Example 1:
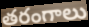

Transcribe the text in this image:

తరంగాలు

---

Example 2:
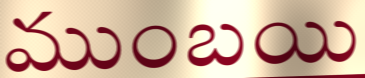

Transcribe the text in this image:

ముంబయి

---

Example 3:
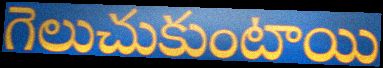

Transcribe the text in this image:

గెలుచుకుంటాయి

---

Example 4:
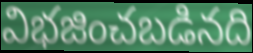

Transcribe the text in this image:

విభజించబడినది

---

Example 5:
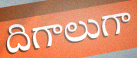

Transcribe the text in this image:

దిగాలుగా